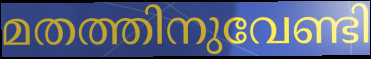
മതത്തിനുവേണ്ടി